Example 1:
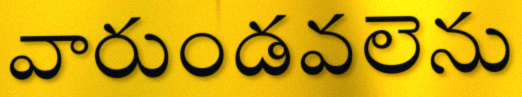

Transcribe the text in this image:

వారుండవలెను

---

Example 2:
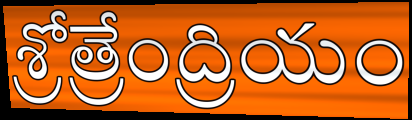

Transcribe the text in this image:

శ్రోత్రేంద్రియం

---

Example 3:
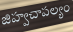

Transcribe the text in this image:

జిహ్వచాపల్యం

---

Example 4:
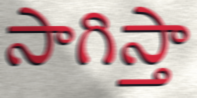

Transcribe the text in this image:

సాగిస్తా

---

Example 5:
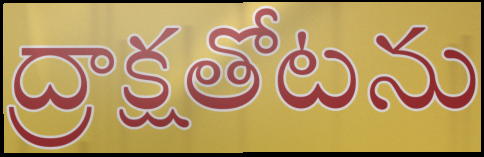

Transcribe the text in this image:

ద్రాక్షతోటను